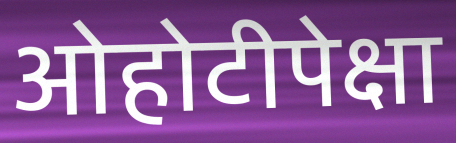
ओहोटीपेक्षा